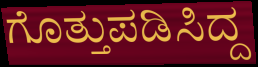
ಗೊತ್ತುಪಡಿಸಿದ್ದ